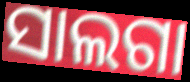
ସାଲଗା